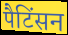
पैटिंसन